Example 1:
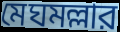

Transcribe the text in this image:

মেঘমল্লার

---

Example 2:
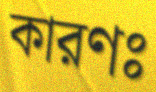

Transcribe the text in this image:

কারণঃ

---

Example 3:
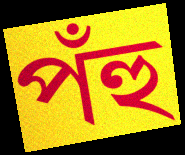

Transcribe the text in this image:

পঁহু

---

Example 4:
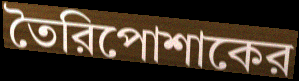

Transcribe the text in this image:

তৈরিপোশাকের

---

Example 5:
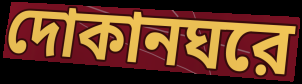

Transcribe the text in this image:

দোকানঘরে